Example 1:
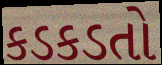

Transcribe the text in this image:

કડકડતો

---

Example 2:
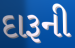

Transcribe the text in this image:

દારૂની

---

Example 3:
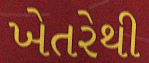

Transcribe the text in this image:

ખેતરેથી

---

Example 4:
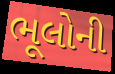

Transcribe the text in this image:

ભૂલોની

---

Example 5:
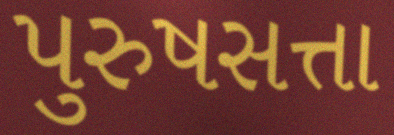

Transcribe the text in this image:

પુરુષસત્તા